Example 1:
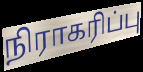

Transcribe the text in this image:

நிராகரிப்பு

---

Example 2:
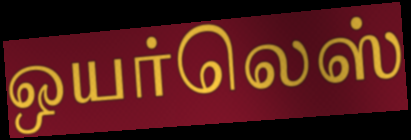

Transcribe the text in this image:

ஒயர்லெஸ்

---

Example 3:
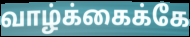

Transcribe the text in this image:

வாழ்க்கைக்கே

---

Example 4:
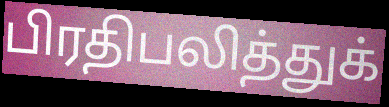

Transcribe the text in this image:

பிரதிபலித்துக்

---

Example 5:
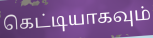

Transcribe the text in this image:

கெட்டியாகவும்